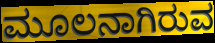
ಮೂಲನಾಗಿರುವ